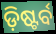
ଡ଼ିଷ୍ଟର୍ବ